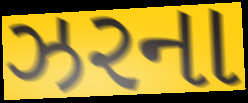
ઝરના